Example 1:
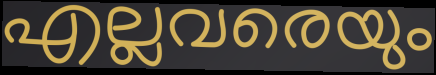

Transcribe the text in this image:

എല്ലവരെയും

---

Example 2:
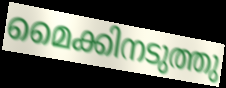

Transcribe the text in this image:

മൈക്കിനടുത്തു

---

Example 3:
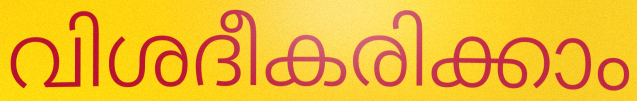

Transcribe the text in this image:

വിശദീകരിക്കാം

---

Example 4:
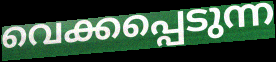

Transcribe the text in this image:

വെക്കപ്പെടുന്ന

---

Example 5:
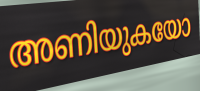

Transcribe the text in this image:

അണിയുകയോ